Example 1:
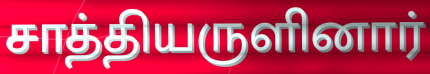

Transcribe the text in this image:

சாத்தியருளினார்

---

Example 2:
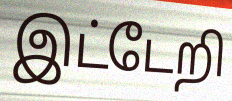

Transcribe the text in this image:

இட்டேறி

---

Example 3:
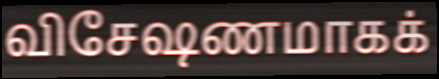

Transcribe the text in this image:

விசேஷணமாகக்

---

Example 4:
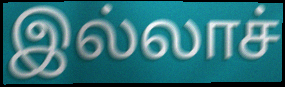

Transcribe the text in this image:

இல்லாச்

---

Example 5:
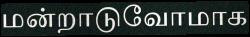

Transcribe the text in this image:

மன்றாடுவோமாக